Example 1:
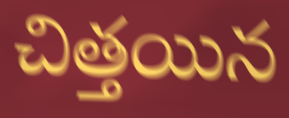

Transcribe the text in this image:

చిత్తయిన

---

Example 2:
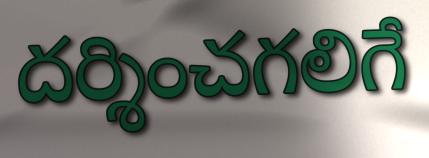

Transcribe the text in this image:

దర్శించగలిగే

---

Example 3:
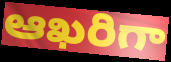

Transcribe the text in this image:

ఆఖరిగా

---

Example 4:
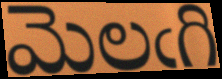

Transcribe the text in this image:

మెలఁగి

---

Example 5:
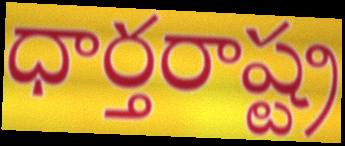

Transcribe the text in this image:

ధార్తరాష్ట్ర